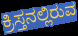
ಕ್ರಿಸ್ತನಲ್ಲಿರುವ